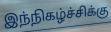
இந்நிகழ்ச்சிக்கு